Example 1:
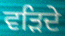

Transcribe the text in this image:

ਵੜਿਦੇ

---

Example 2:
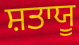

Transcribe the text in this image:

ਸ਼ਤਾਯੂ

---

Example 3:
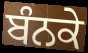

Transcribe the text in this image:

ਬੰਨਕੇ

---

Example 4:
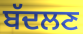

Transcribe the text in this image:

ਬੱਦਲਣ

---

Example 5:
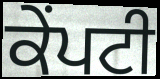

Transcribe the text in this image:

ਕੇਂਪਟੀ